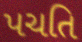
પચતિ